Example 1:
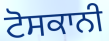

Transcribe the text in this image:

ਟੋਸਕਾਨੀ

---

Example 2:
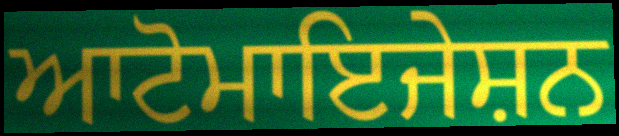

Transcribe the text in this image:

ਆਟੋਮਾਇਜੇਸ਼ਨ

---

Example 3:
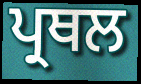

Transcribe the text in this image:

ਪ੍ਰਥਲ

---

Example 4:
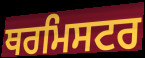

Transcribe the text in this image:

ਥਰਮਿਸਟਰ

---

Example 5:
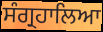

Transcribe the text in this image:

ਸੰਗ੍ਰਹਾਲਿਆ